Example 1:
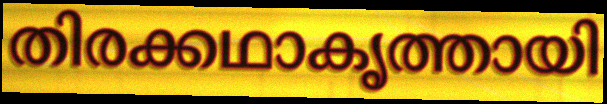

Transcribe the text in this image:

തിരക്കഥാകൃത്തായി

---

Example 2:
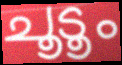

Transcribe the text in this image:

ചൂടൂം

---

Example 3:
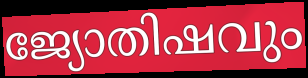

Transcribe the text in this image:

ജ്യോതിഷവും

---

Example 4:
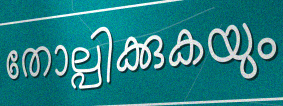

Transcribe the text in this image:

തോല്പിക്കുകയും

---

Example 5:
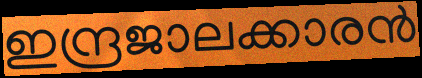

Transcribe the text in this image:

ഇന്ദ്രജാലക്കാരൻ